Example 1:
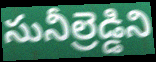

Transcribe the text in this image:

సునీల్రెడ్డిని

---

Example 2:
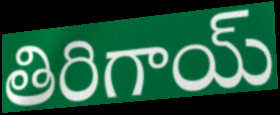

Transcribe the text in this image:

తిరిగాయ్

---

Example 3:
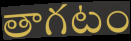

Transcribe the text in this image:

తాగటం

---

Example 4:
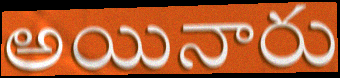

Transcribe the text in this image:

అయినారు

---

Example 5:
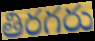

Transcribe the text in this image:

తిరగరు